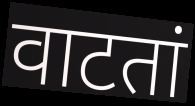
वाटतां